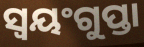
ସ୍ୱୟଂଗୁପ୍ତା